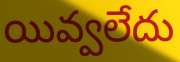
యివ్వలేదు